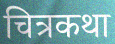
चित्रकथा